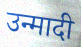
उन्मादी